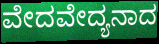
ವೇದವೇದ್ಯನಾದ